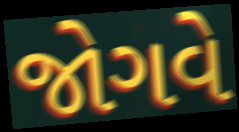
જોગવે